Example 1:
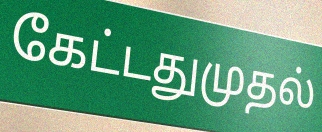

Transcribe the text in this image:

கேட்டதுமுதல்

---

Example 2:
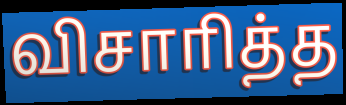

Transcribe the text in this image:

விசாரித்த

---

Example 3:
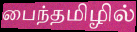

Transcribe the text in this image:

பைந்தமிழில்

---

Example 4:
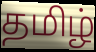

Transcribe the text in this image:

தமிழ்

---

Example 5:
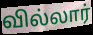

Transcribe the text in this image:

வில்லார்